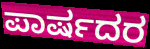
ಪಾರ್ಷದರ